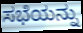
ಸಭೆಯನ್ನು